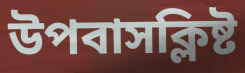
উপবাসক্লিষ্ট